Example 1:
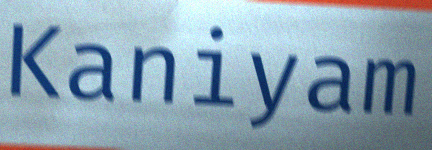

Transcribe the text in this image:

Kaniyam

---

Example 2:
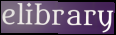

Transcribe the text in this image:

elibrary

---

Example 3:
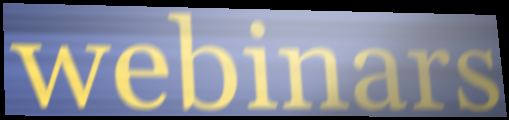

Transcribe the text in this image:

webinars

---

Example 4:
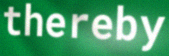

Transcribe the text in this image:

thereby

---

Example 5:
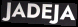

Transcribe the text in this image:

JADEJA